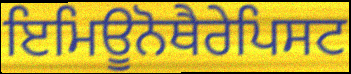
ਇਮਿਊਨੋਥੈਰੇਪਿਸਟ